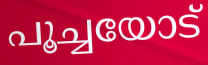
പൂച്ചയോട്